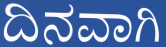
ದಿನವಾಗಿ